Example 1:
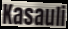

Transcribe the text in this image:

Kasauli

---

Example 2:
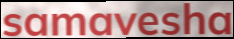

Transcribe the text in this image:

samavesha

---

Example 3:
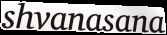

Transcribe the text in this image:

shvanasana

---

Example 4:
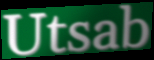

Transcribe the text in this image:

Utsab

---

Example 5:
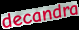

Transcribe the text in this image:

decandra